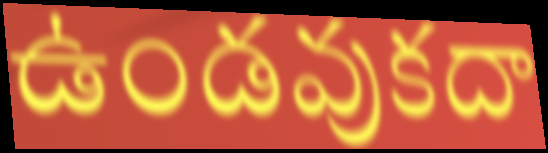
ఉండవుకదా